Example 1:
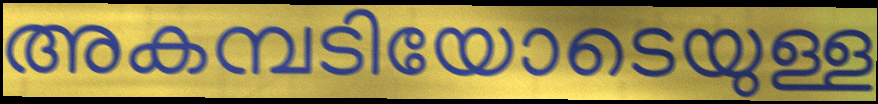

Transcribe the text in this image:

അകമ്പടിയോടെയുള്ള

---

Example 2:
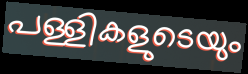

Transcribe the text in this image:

പള്ളികളുടെയും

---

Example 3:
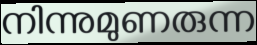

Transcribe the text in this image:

നിന്നുമുണരുന്ന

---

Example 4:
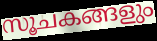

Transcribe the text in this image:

സൂചകങ്ങളും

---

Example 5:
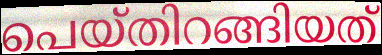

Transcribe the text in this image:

പെയ്തിറങ്ങിയത്